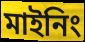
মাইনিং